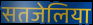
सतजेलिया